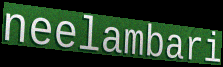
neelambari